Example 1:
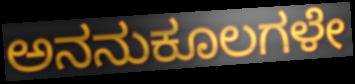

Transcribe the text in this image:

ಅನನುಕೂಲಗಳೇ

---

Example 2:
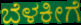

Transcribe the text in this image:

ಬೆಳಕೀಗೆ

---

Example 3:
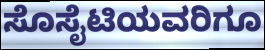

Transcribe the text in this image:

ಸೊಸೈಟಿಯವರಿಗೂ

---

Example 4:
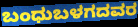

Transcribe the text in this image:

ಬಂಧುಬಳಗದವರ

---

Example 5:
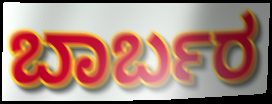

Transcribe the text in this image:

ಬಾರ್ಬರ